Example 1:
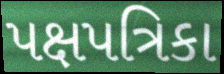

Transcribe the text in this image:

પક્ષપત્રિકા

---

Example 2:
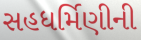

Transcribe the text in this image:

સહધર્મિણીની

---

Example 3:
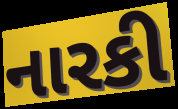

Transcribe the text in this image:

નારકી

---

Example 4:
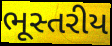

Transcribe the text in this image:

ભૂસ્તરીય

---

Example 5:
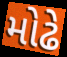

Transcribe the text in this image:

મોઢે